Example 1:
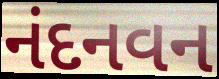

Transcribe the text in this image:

નંદનવન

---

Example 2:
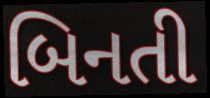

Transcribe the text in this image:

બિનતી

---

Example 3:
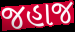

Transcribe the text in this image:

જહાજ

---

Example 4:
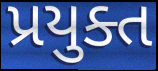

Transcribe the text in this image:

પ્રયુક્ત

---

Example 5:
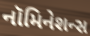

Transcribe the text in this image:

નૉમિનેશન્સ